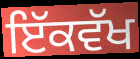
ਇੱਕਵੱਖ